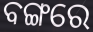
ବଙ୍ଗରେ